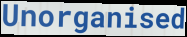
Unorganised